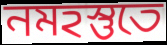
নমহস্তুতে